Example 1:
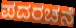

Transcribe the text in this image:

ಪದರಚನೆ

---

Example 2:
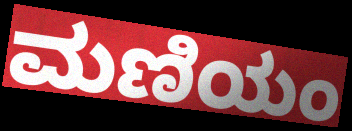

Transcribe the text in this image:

ಮಣಿಯಂ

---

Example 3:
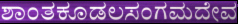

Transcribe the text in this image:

ಶಾಂತಕೂಡಲಸಂಗಮದೇವ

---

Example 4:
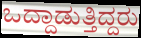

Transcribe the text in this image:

ಒದ್ದಾಡುತ್ತಿದ್ದರು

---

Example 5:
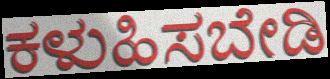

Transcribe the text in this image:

ಕಳುಹಿಸಬೇಡಿ